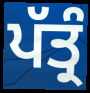
ਪੱਤ੍ਰੰ